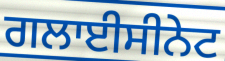
ਗਲਾਈਸੀਨੇਟ